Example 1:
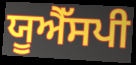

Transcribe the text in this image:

ਯੂਐੱਸਪੀ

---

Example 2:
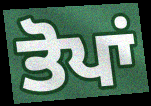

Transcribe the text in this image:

ਤੋਪਾਂ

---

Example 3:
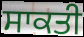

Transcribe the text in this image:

ਸਾਕਤੀ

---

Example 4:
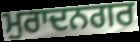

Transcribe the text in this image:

ਮੁਰਾਦਨਗਰ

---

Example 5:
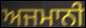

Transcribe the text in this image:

ਅਜਮਾਨੀ